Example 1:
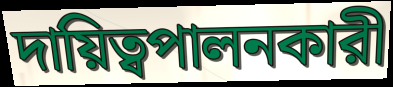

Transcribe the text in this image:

দায়িত্বপালনকারী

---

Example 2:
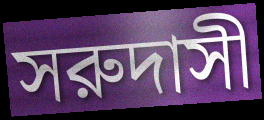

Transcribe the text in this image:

সরুদাসী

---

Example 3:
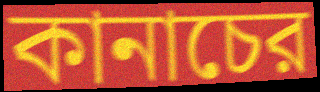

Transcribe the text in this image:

কানাচের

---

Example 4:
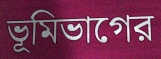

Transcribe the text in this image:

ভূমিভাগের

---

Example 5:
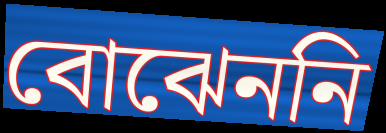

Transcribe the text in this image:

বোঝেননি